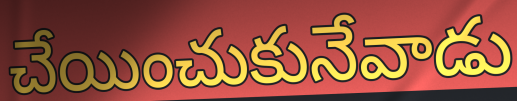
చేయించుకునేవాడు